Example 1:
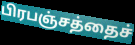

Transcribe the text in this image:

பிரபஞ்சத்தைச்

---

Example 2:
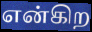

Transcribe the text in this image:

என்கிற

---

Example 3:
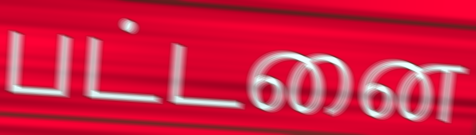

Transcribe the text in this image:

பட்டனை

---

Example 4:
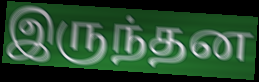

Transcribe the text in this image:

இருந்தன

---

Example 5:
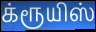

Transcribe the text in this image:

க்ரூயிஸ்